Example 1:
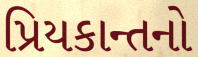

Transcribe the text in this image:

પ્રિયકાન્તનો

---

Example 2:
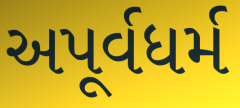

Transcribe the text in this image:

અપૂર્વધર્મ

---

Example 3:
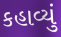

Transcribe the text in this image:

કહાવ્યું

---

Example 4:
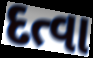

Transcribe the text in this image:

દત્વા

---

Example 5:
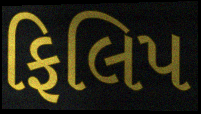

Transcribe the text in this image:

ફિલિપ